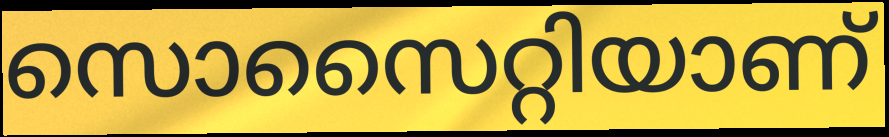
സൊസൈറ്റിയാണ്